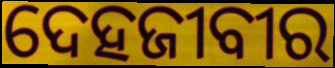
ଦେହଜୀବୀର